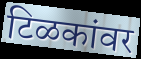
टिळकांवर